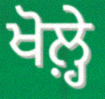
ਖੋਲ਼੍ਹੇ